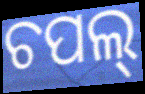
ଚପଲ୍